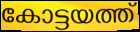
കോട്ടയത്ത്